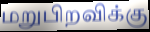
மறுபிறவிக்கு